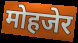
मोहजेर